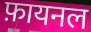
फ़ायनल